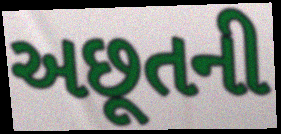
અછૂતની